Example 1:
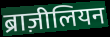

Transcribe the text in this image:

ब्राज़ीलियन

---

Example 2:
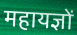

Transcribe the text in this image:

महायज्ञों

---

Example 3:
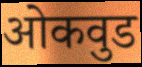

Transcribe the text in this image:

ओकवुड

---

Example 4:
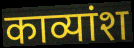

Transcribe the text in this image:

काव्यांश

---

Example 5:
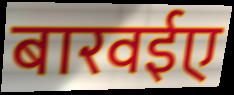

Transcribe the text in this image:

बारवईए